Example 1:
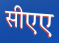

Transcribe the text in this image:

सीएए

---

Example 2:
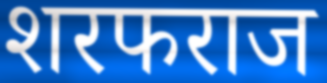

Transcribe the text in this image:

शरफराज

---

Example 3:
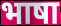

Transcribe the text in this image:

भाषा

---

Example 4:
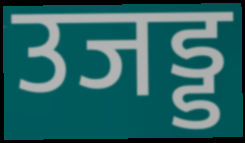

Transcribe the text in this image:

उजड्ड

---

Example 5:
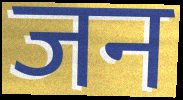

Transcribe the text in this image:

जन